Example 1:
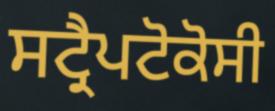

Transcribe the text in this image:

ਸਟ੍ਰੈਪਟੋਕੋਸੀ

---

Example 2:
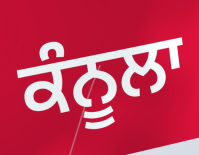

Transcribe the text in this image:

ਕੰਨੂਲਾ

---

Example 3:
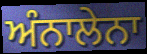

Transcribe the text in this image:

ਅੰਨਾਲੇਨਾ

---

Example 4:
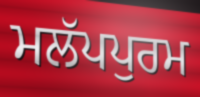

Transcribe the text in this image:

ਮਲੱਪਪੁਰਮ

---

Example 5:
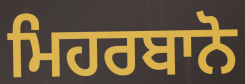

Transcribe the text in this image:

ਮਿਹਰਬਾਨੋ